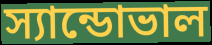
স্যান্ডোভাল